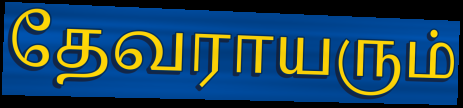
தேவராயரும்